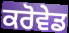
ਕਰੋਵੇਡ